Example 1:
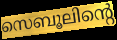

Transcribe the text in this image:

സെബൂലിന്റെ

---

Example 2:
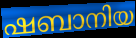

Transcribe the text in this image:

ഷബാനിയ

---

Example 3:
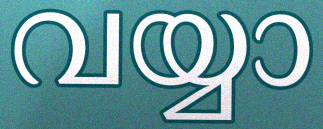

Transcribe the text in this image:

വയ്യാ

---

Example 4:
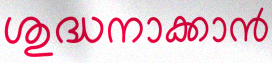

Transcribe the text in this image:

ശുദ്ധനാക്കാൻ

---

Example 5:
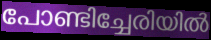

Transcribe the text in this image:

പോണ്ടിച്ചേരിയിൽ